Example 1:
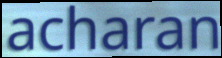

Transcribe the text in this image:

acharan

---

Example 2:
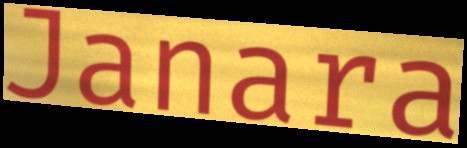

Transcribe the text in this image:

Janara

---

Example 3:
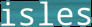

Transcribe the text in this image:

isles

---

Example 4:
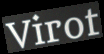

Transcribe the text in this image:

Virot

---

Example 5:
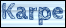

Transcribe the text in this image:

Karpe